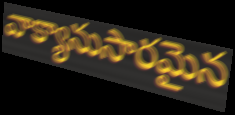
వాక్యానుసారమైన